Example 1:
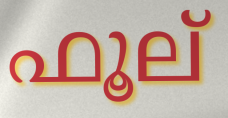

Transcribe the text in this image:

ഫൂല്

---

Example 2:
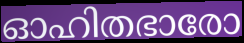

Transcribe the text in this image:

ഓഹിതഭാരോ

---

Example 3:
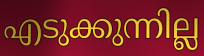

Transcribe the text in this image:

എടുക്കുന്നില്ല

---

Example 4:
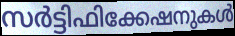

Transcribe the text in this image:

സർട്ടിഫിക്കേഷനുകൾ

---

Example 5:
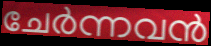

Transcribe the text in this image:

ചേർന്നവൻ